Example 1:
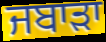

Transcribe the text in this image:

ਜਬਾੜਾ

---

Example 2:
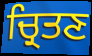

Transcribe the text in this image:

ਚ੍ਰਿਤਣ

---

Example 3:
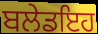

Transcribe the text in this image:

ਬਲੇਡਇਹ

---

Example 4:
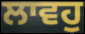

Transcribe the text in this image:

ਲਾਵਹੁ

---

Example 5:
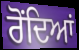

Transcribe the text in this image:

ਰੋਂਦਿਆਂ